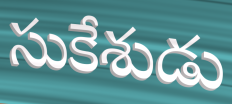
సుకేశుడు